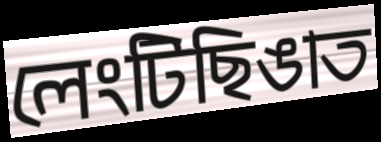
লেংটিছিঙাত